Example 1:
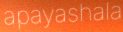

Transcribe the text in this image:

apayashala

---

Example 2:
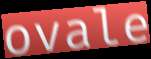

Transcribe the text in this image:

ovale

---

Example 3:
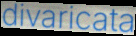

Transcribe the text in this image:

divaricata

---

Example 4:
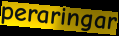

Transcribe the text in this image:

peraringar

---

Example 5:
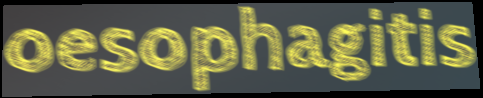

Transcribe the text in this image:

oesophagitis